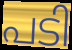
പടി